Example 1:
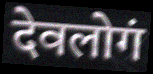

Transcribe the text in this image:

देवलोगं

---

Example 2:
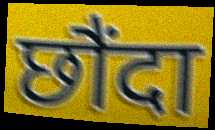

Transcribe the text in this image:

छौंदा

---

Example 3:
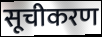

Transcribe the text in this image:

सूचीकरण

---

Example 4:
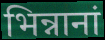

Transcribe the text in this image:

भिन्नानां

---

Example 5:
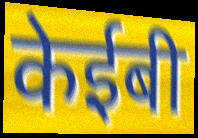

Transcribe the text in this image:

केईबी